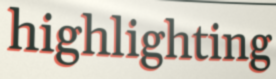
highlighting